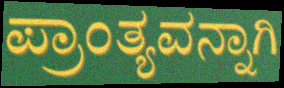
ಪ್ರಾಂತ್ಯವನ್ನಾಗಿ